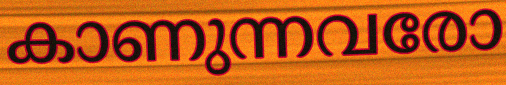
കാണുന്നവരോ